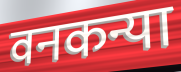
वनकन्या